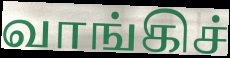
வாங்கிச்